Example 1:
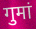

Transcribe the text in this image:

गुमां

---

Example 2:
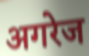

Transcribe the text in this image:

अगरेज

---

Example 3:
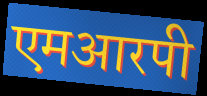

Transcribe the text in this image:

एमआरपी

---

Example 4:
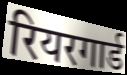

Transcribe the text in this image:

रियरगार्ड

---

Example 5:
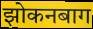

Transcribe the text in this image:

झोकनबाग